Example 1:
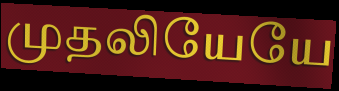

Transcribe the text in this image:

முதலியேயே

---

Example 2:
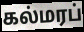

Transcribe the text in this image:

கல்மரப்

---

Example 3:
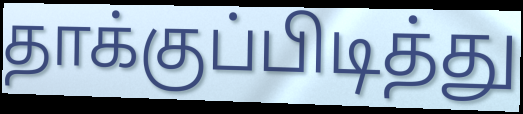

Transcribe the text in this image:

தாக்குப்பிடித்து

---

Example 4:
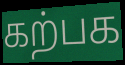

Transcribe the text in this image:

கற்பக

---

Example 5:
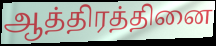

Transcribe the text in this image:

ஆத்திரத்தினை